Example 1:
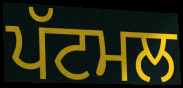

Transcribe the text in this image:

ਪੱਟਮਲ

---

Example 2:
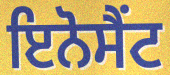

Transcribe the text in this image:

ਇਨੋਸੈਂਟ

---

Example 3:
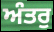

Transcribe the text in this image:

ਅੰਤਰੁ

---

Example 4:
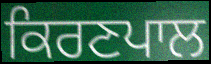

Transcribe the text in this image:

ਕਿਰਣਪਾਲ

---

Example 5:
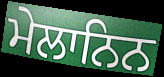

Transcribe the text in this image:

ਮੇਲਾਨਿਨ